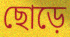
ছোড়ে